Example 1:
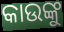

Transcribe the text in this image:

କାଉଙ୍କୁ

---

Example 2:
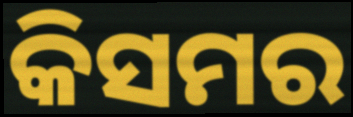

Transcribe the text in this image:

କିସମର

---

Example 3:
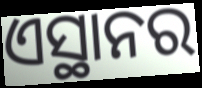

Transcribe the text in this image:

ଏସ୍ଥାନର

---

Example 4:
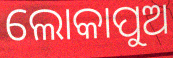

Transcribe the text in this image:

ଲୋକାପୁଅ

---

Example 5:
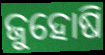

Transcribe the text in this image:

ଜୁହୋଷି